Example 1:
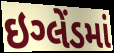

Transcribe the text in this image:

ઇગ્લેંડમાં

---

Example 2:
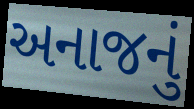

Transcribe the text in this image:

અનાજનું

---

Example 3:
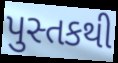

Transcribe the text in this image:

પુસ્તકથી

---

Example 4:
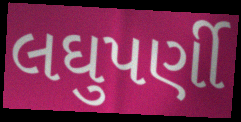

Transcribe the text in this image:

લઘુપર્ણી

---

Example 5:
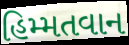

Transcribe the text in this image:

હિમ્મતવાન